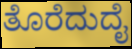
ತೊರೆದುದೈ